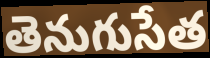
తెనుగుసేత